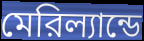
মেরিল্যান্ডে